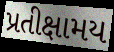
પ્રતીક્ષામય